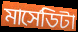
মার্সেডিটা